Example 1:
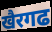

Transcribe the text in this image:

खैरगढ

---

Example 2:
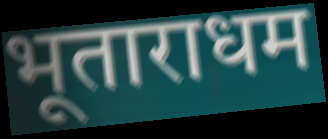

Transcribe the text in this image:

भूताराधम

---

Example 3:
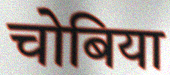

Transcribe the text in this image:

चोबिया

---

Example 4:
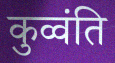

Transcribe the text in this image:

कुव्वंति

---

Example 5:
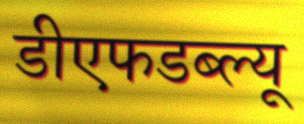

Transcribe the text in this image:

डीएफडब्ल्यू